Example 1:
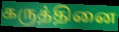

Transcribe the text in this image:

கருத்தினை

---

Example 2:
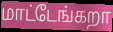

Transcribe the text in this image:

மாட்டேங்கறா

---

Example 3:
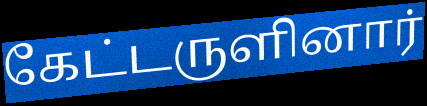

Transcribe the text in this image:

கேட்டருளினார்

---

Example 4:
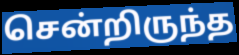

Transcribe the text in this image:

சென்றிருந்த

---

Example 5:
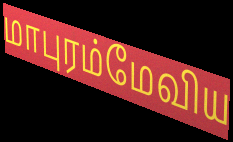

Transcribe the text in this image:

மாபுரம்மேவிய